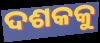
ଦଶକକୁ